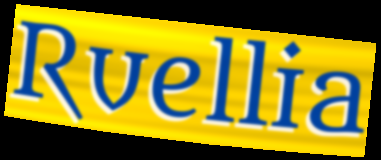
Ruellia